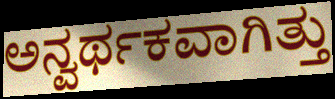
ಅನ್ವರ್ಥಕವಾಗಿತ್ತು